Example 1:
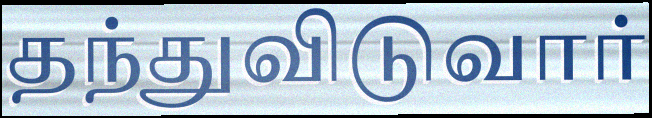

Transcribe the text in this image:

தந்துவிடுவார்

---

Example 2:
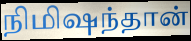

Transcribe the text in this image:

நிமிஷந்தான்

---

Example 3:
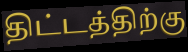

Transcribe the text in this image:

திட்டத்திற்கு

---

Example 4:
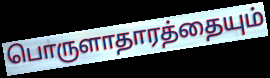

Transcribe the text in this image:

பொருளாதாரத்தையும்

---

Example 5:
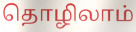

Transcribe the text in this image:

தொழிலாம்